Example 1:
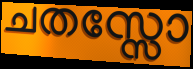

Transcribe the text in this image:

ചതസ്സോ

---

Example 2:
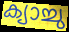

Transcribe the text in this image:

ക്യാച്ചു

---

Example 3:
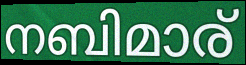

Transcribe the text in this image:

നബിമാര്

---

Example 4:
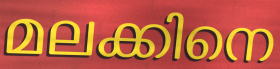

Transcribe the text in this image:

മലക്കിനെ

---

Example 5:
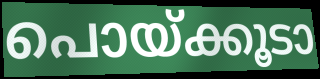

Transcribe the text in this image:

പൊയ്ക്കൂടാ